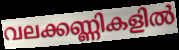
വലക്കണ്ണികളിൽ